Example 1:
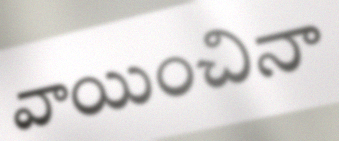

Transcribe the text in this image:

వాయించినా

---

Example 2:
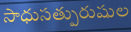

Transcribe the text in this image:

సాధుసత్పురుషుల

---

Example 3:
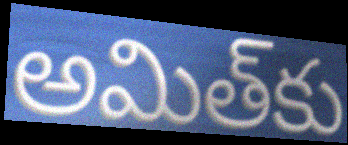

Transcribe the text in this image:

అమిత్‌కు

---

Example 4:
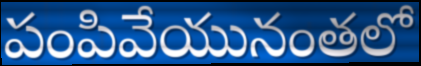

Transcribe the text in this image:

పంపివేయునంతలో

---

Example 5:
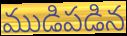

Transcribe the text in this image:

ముడిపడిన